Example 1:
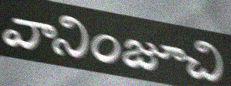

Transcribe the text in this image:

వానింజూచి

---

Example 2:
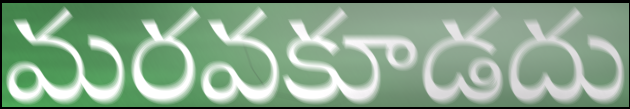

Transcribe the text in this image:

మరవకూడదు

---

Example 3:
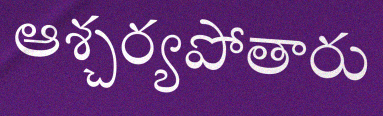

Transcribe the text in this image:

ఆశ్చర్యపోతారు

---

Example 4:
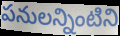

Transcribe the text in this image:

పనులన్నింటిని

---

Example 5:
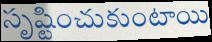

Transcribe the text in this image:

సృష్టించుకుంటాయి